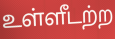
உள்ளீடற்ற